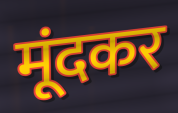
मूंदकर